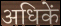
अधिकें